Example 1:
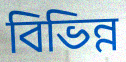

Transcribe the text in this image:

বিভিন্ন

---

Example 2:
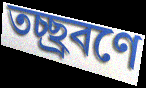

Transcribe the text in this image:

তচ্ছ্রবণে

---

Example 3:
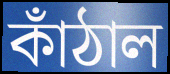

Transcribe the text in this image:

কাঁঠাল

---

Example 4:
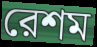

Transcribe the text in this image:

রেশম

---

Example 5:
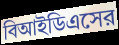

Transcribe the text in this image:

বিআইডিএসের